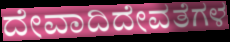
ದೇವಾದಿದೇವತೆಗಳ